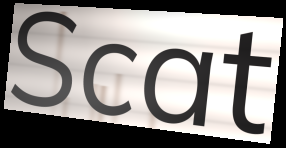
Scat